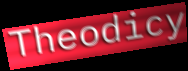
Theodicy